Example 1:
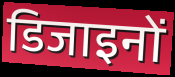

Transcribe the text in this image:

डिजाइनों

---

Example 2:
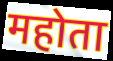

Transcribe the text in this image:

महोता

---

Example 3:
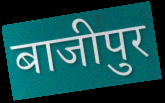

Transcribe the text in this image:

बाजीपुर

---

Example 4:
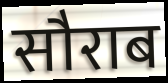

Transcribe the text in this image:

सौराब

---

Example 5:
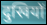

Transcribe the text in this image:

दुखियों